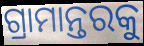
ଗ୍ରାମାନ୍ତରକୁ